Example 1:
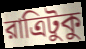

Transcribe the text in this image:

রাত্রিটুকু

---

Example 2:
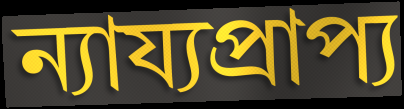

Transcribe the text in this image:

ন্যায্যপ্রাপ্য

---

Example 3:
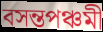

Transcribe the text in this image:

বসন্তপঞ্চমী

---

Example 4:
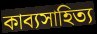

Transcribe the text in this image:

কাব্যসাহিত্য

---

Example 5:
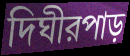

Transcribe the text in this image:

দিঘীরপাড়